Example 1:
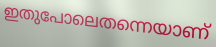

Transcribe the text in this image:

ഇതുപോലെതന്നെയാണ്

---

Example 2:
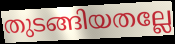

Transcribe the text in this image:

തുടങ്ങിയതല്ലേ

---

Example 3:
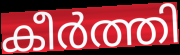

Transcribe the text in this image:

കീർത്തി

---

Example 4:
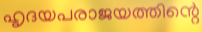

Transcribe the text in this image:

ഹൃദയപരാജയത്തിന്റെ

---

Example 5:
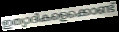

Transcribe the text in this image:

ഇത്യാദികളെക്കൊണ്ട്